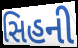
સિહની